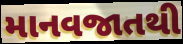
માનવજાતથી